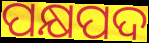
ପକ୍ଷପଦ